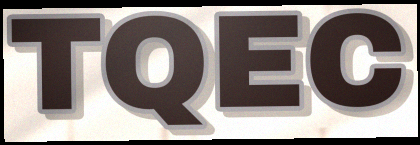
TQEC